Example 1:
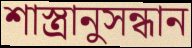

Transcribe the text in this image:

শাস্ত্রানুসন্ধান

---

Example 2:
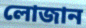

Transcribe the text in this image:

লোজান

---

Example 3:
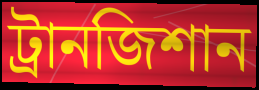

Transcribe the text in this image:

ট্রানজিশান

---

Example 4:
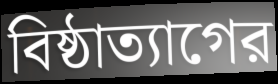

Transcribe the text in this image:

বিষ্ঠাত্যাগের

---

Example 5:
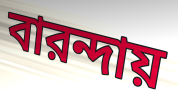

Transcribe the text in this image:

বারন্দায়